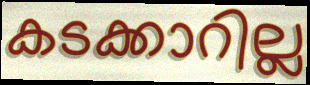
കടക്കാറില്ല